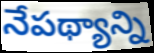
నేపథ్యాన్ని